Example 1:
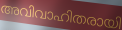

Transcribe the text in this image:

അവിവാഹിതരായി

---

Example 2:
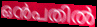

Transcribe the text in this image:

ഒൻപതിൽ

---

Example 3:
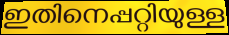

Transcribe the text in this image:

ഇതിനെപ്പറ്റിയുള്ള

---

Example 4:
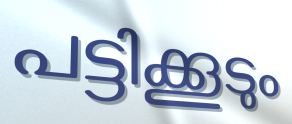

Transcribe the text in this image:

പട്ടിക്കൂടും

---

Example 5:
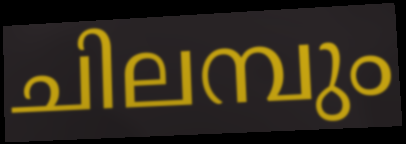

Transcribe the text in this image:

ചിലമ്പും